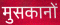
मुसकानों